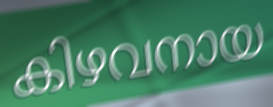
കിഴവനായ